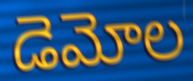
డెమోల